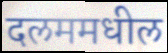
दलममधील